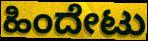
ಹಿಂದೇಟು